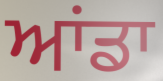
ਆਂਡਾ